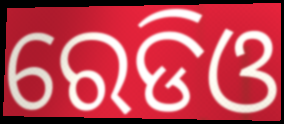
ରେଡିଓ